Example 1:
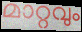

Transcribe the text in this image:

മാറ്റവും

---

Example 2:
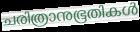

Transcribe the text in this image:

ചരിത്രാനുഭൂതികൾ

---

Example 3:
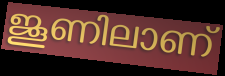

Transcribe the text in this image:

ജൂണിലാണ്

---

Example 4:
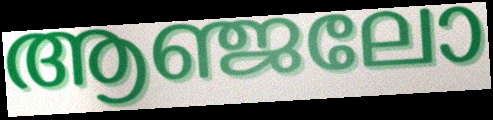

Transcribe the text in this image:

ആഞ്ജലോ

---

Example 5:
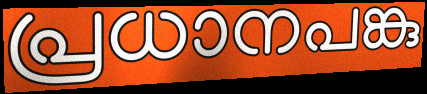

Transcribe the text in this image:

പ്രധാനപങ്കു